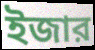
ইজার